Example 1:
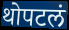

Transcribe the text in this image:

थोपटलं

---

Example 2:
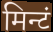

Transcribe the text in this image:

मिन्टं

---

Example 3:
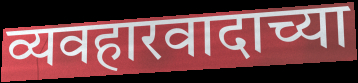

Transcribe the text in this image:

व्यवहारवादाच्या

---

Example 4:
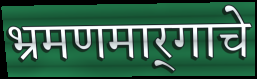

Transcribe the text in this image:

भ्रमणमार्गाचे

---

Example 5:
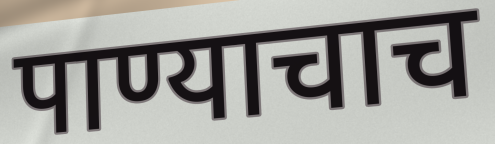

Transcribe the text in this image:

पाण्याचाच